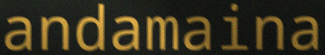
andamaina